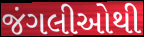
જંગલીઓથી